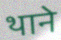
थाने